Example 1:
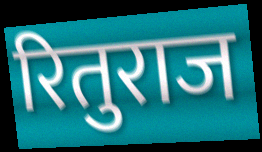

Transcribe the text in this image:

रितुराज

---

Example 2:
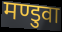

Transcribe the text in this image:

मण्डुवा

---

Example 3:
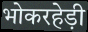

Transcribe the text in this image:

भोकरहेड़ी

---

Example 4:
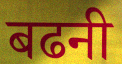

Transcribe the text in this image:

बढनी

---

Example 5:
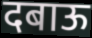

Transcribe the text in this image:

दबाऊ